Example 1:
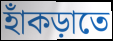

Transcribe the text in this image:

হাঁকড়াতে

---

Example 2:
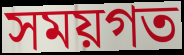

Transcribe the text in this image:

সময়গত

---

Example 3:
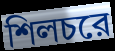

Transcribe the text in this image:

শিলচরে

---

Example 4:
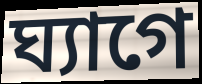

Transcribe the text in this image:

ঘ্যাগে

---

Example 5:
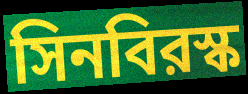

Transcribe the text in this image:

সিনবিরস্ক